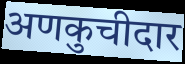
अणकुचीदार